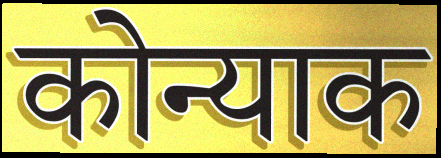
कोन्याक